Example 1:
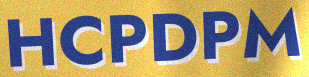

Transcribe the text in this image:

HCPDPM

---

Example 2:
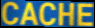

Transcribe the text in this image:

CACHE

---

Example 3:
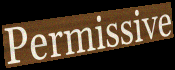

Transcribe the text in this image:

Permissive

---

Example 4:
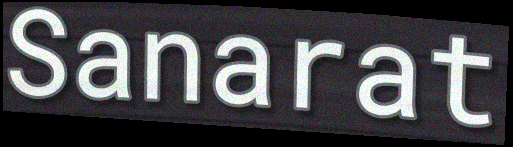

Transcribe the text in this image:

Sanarat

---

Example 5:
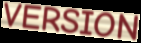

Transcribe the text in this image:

VERSION